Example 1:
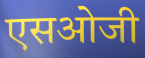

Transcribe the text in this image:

एसओजी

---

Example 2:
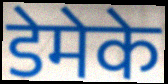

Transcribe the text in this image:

डेमेके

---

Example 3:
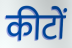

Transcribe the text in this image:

कीटों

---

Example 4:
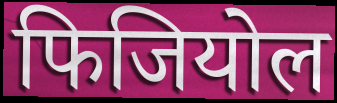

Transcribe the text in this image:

फिजियोल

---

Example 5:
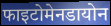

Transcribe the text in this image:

फाइटोमेनडायोन